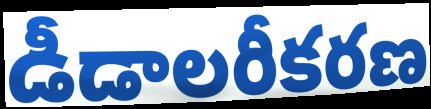
డీడాలరీకరణ